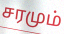
சரமும்